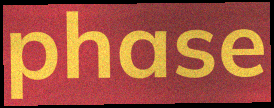
phase